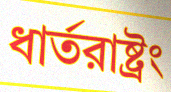
ধার্তরাষ্ট্রং